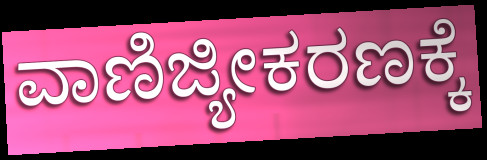
ವಾಣಿಜ್ಯೀಕರಣಕ್ಕೆ